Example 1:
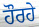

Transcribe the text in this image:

ਹੌਰਹੇ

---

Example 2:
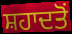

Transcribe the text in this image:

ਸ਼ਹਾਦਤੋਂ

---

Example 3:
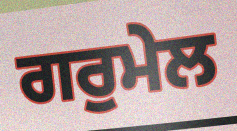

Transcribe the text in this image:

ਗਰੁਮੇਲ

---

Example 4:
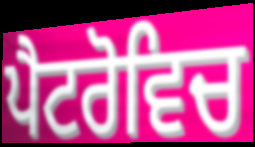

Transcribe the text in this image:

ਪੈਟਰੋਵਿਚ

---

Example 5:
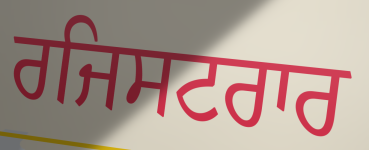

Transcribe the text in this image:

ਰਜਿਸਟਰਾਰ